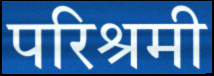
परिश्रमी